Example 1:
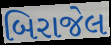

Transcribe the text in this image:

બિરાજેલ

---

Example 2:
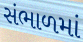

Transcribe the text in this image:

સંભાળમાં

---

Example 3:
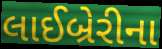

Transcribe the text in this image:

લાઈબ્રેરીના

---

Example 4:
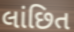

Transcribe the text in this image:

લાંછિત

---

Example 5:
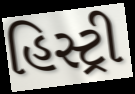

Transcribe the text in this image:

હિસ્ટ્રી